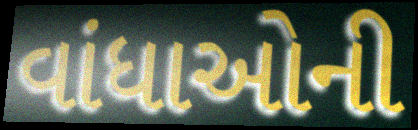
વાંધાઓની